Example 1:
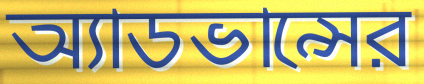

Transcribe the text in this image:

অ্যাডভান্সের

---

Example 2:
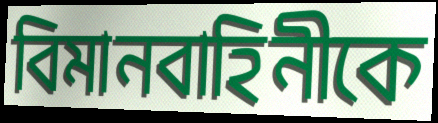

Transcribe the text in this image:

বিমানবাহিনীকে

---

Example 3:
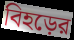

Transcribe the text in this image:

বিহড়ের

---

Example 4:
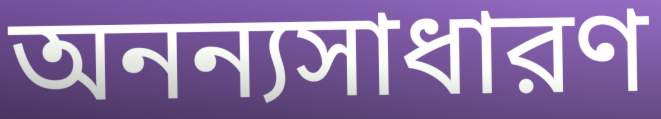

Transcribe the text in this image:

অনন্যসাধারণ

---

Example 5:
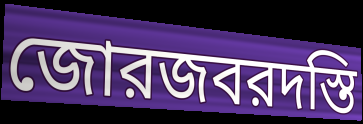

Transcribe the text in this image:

জোরজবরদস্তি